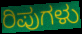
ರಿಪುಗಳು